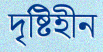
দৃষ্টিহীন